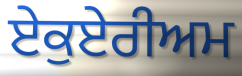
ਏਕੁਏਰੀਅਮ